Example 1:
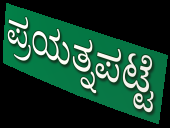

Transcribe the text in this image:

ಪ್ರಯತ್ನಪಟ್ಟೆ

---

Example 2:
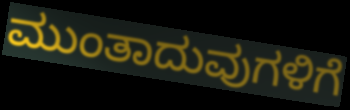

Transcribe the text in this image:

ಮುಂತಾದುವುಗಳಿಗೆ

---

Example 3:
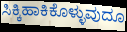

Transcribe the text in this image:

ಸಿಕ್ಕಿಹಾಕಿಕೊಳ್ಳುವುದೂ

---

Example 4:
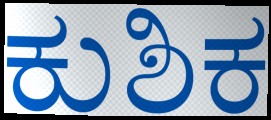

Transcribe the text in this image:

ಕುಶಿಕ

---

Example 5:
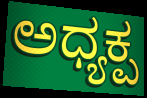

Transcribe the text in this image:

ಅಧ್ಯಕ್ಪ